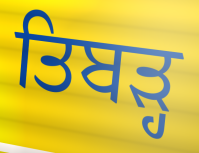
ਤਿਬੜ੍ਹ